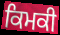
ਕਿਮਕੀ